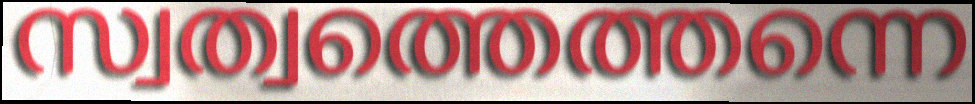
സ്വത്വത്തെത്തന്നെ